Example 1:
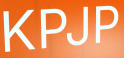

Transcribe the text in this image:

KPJP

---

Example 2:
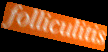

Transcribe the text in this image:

folliculitis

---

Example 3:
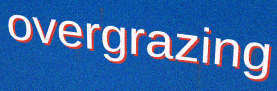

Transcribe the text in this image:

overgrazing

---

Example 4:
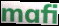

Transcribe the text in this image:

mafi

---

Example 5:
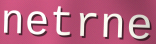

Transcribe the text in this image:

netrne